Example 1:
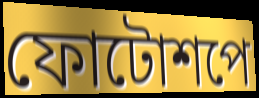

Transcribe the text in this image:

ফোটোশপে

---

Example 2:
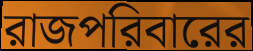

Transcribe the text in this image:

রাজপরিবারের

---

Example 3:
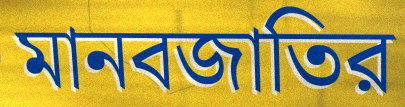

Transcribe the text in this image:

মানবজাতির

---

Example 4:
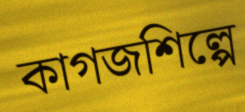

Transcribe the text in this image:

কাগজশিল্পে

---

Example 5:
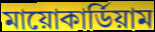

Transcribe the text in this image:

মায়োকার্ডিয়াম